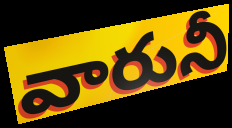
వారునీ